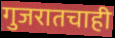
गुजरातचाही